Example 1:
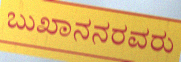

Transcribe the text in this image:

ಬುಖಾನನರವರು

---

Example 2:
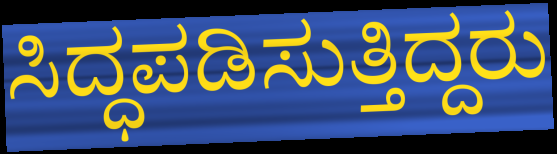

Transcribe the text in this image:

ಸಿದ್ಧಪಡಿಸುತ್ತಿದ್ದರು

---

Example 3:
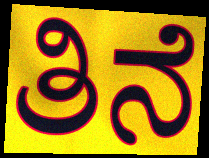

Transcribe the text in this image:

ತಿನೆ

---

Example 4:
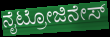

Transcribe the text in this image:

ನೈಟ್ರೋಜಿನೇಸ್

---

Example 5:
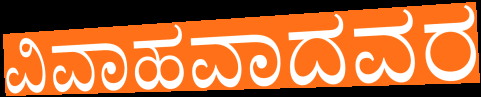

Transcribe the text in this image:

ವಿವಾಹವಾದವರ